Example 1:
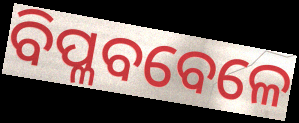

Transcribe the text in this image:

ବିପ୍ଳବବେଳେ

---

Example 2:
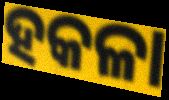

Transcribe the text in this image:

ହକଳା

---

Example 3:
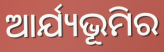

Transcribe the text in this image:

ଆର୍ଯ୍ୟଭୂମିର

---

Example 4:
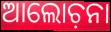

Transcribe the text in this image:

ଆଲୋଚ଼ନା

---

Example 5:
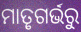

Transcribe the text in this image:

ମାତୃଗର୍ଭରୁ